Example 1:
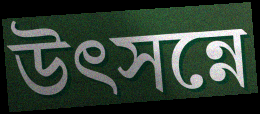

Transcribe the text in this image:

উৎসন্নে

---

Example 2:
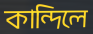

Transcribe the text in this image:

কান্দিলে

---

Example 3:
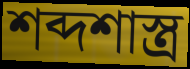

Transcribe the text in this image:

শব্দশাস্ত্র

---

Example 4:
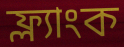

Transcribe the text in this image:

ফ্ল্যাংক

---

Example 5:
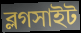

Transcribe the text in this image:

ব্লগসাইট